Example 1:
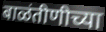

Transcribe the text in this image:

बाळंतीणीच्या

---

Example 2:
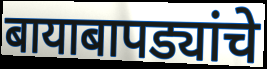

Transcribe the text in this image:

बायाबापड्यांचे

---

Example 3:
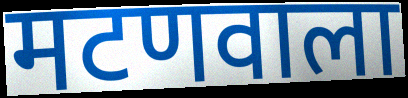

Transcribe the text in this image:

मटणवाला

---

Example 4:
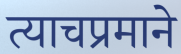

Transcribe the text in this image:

त्याचप्रमाने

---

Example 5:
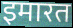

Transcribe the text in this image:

इमारत